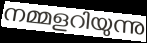
നമ്മളറിയുന്നു